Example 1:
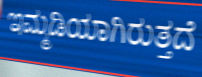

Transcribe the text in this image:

ಇಮ್ಮಡಿಯಾಗಿರುತ್ತದೆ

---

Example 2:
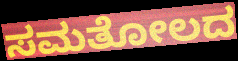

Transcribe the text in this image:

ಸಮತೋಲದ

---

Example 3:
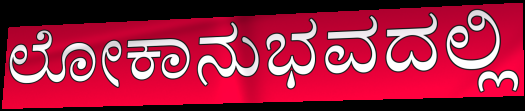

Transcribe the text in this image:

ಲೋಕಾನುಭವದಲ್ಲಿ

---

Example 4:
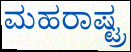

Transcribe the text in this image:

ಮಹರಾಷ್ಟ್ರ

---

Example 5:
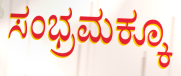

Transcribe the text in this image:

ಸಂಭ್ರಮಕ್ಕೂ